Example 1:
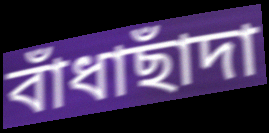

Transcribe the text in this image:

বাঁধাছাঁদা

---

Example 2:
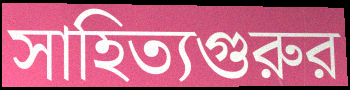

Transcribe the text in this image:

সাহিত্যগুরুর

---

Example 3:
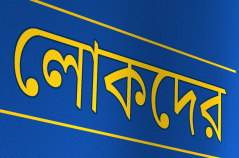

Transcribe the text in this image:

লোকদের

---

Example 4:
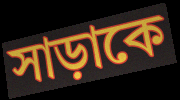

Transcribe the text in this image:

সাড়াকে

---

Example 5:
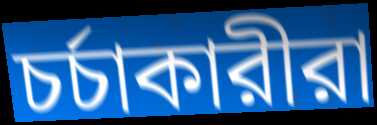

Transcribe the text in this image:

চর্চাকারীরা